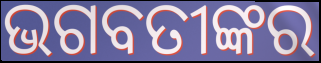
ଭଗବତୀଙ୍କର